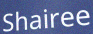
Shairee